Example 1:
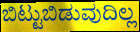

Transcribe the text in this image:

ಬಿಟ್ಟುಬಿಡುವುದಿಲ್ಲ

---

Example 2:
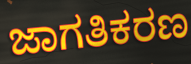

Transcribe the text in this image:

ಜಾಗತಿಕರಣ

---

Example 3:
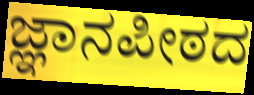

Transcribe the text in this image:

ಜ್ಞಾನಪೀಠದ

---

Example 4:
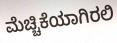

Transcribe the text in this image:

ಮೆಚ್ಚಿಕೆಯಾಗಿರಲಿ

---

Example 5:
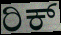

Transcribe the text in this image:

ರಿಕ್